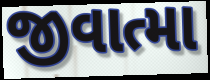
જીવાત્મા